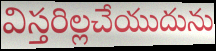
విస్తరిల్లచేయుదును